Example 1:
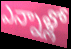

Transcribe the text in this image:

ఎన్నాళ్లో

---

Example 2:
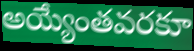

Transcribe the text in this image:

అయ్యేంతవరకూ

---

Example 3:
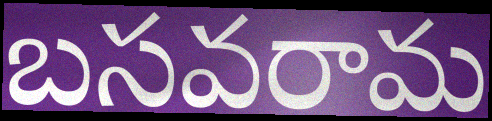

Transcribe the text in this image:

బసవరామ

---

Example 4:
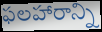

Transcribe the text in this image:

ఫలహారాన్ని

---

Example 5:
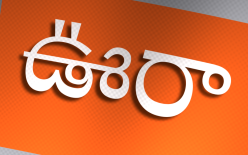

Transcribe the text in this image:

ఊరా